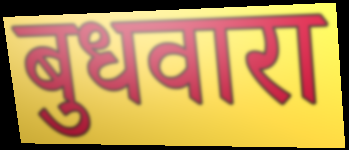
बुधवारा